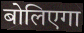
बोलिएगा